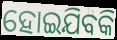
ହୋଇଯିବକି